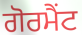
ਗੋਰਮੈਂਟ